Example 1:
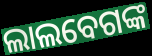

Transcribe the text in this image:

ଲାଲବେଗଙ୍କ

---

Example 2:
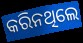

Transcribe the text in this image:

କରିନଥିଲେ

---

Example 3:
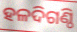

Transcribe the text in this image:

ହଳଦିଗଣ୍ଠି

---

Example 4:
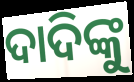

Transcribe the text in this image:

ଦାଦିଙ୍କୁ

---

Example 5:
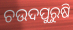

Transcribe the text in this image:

ଚଉଦପୁରୁଷି